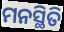
ମନସ୍ଥିତି